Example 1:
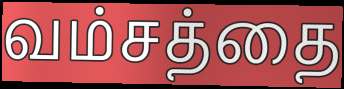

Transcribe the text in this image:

வம்சத்தை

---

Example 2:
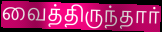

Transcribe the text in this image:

வைத்திருந்தார்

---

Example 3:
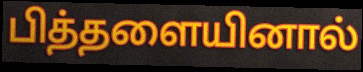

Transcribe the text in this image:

பித்தளையினால்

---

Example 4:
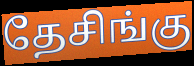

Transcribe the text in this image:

தேசிங்கு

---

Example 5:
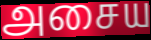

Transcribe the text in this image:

அசைய